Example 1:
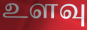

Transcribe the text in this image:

உளவு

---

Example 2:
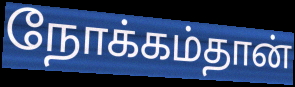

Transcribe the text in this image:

நோக்கம்தான்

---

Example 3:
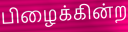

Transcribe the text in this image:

பிழைக்கின்ற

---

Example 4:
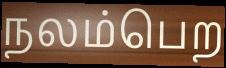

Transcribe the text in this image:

நலம்பெற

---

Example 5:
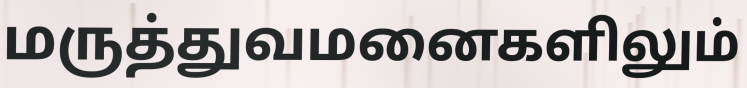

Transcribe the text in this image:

மருத்துவமனைகளிலும்